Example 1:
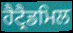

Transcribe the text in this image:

ਹੈਟ੍ਰੈਡਮਿਲ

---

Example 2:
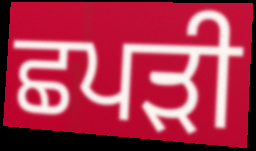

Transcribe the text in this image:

ਛਪੜੀ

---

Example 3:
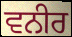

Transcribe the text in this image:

ਵਨੀਰ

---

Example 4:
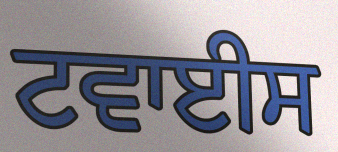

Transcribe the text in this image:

ਟਵਾਈਸ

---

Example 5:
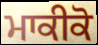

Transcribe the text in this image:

ਮਾਕੀਕੋ